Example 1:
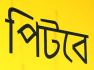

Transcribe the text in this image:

পিটবে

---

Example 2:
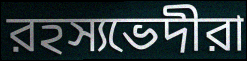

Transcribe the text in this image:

রহস্যভেদীরা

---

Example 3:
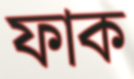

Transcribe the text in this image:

ফাক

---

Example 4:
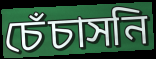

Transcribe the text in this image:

চেঁচাসনি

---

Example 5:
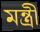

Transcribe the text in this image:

মন্ত্রী